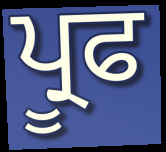
ਪ੍ਰੂਫ